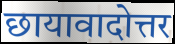
छायावादोत्तर